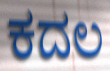
ಕದಲ